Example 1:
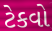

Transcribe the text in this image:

ટેકવો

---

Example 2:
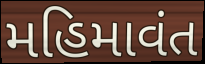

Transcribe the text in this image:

મહિમાવંત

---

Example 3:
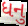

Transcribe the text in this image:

ધનુ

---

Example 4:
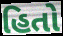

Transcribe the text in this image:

હિતો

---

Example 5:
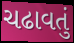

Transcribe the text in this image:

ચઢાવતું